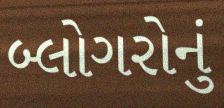
બ્લોગરોનું